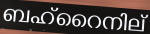
ബഹ്റൈനില്